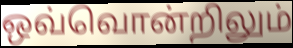
ஒவ்வொன்றிலும்